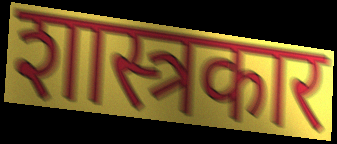
शास्त्रकार